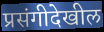
प्रसंगीदेखील